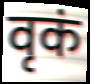
वृकं